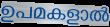
ഉപമകളാൽ